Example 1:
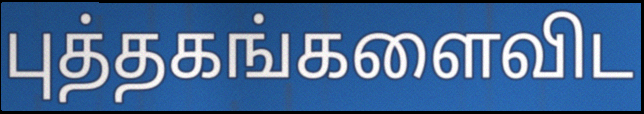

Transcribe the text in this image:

புத்தகங்களைவிட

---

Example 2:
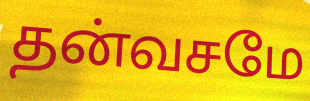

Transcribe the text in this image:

தன்வசமே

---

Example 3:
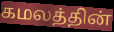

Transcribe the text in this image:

கமலத்தின்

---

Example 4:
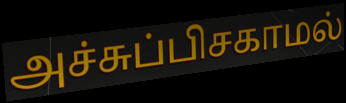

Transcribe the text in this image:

அச்சுப்பிசகாமல்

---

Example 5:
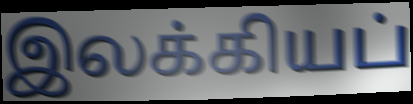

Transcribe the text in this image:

இலக்கியப்